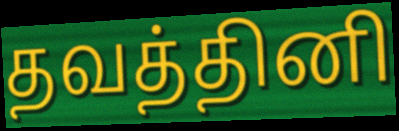
தவத்தினி